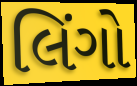
લિંગો